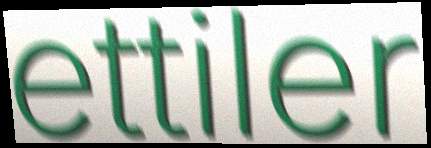
ettiler